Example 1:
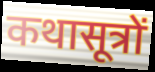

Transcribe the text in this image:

कथासूत्रों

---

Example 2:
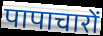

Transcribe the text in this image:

पापाचारों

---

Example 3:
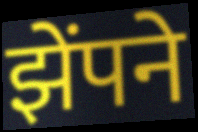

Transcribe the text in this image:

झेंपने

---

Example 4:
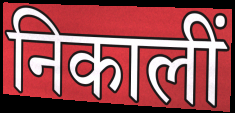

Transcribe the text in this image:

निकालीं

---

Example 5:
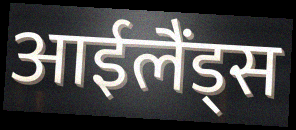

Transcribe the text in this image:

आईलैंड्स